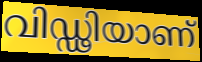
വിഡ്ഢിയാണ്